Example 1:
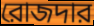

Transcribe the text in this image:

রোজদার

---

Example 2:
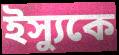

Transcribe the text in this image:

ইস্যুকে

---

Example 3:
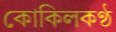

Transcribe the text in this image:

কোকিলকণ্ঠ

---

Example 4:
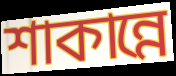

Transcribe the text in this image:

শাকান্নে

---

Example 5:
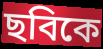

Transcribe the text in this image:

ছবিকে